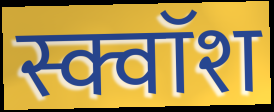
स्क्वॉश